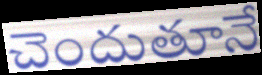
చెందుతూనే